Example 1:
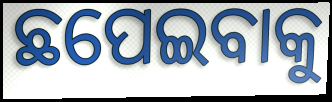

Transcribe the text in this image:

ଛପେଇବାକୁ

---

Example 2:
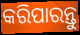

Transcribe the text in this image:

କରିପାରନ୍ତୁ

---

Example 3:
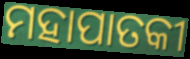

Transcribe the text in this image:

ମହାପାତକୀ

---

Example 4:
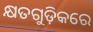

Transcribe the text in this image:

କ୍ଷତଗୁଡ଼ିକରେ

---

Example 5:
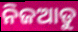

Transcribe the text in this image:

ନିଜଆଡୁ